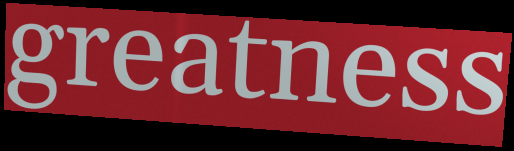
greatness